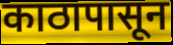
काठापासून